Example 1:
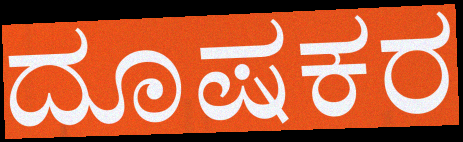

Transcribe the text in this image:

ದೂಷಕರ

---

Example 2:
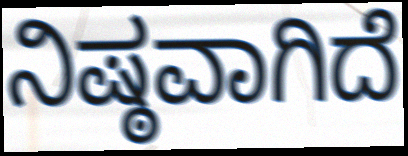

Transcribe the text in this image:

ನಿಷ್ಠವಾಗಿದೆ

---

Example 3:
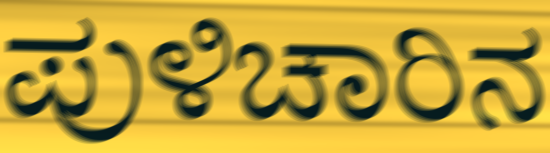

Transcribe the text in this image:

ಪುಳಿಚಾರಿನ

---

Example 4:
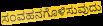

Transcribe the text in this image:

ಸಂವಹನಗೊಳಿಸುವುದು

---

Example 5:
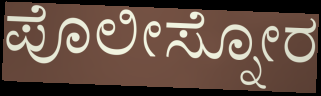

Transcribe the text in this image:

ಪೊಲೀಸ್ನೋರ